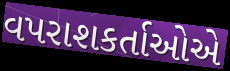
વપરાશકર્તાઓએ